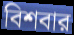
বিশবার